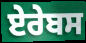
ਏਰੇਬਸ